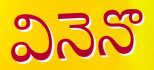
వినెనొ